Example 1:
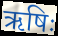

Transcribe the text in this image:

ऋषिः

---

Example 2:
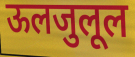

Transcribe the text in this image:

ऊलजुलूल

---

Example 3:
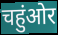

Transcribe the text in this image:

चहुंओर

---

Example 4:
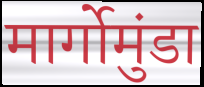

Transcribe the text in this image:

मार्गोमुंडा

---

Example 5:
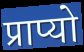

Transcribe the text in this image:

प्राप्यो